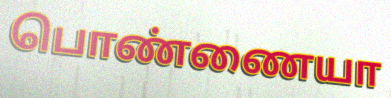
பொண்ணையா